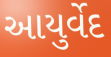
આયુર્વેદ